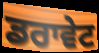
ਡਰਾਵੇਟ